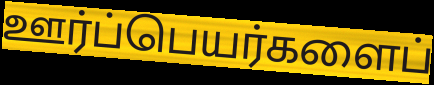
ஊர்ப்பெயர்களைப்